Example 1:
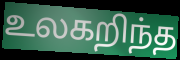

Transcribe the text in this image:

உலகறிந்த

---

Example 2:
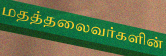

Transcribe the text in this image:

மதத்தலைவர்களின்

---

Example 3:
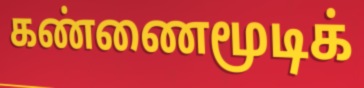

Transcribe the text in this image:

கண்ணைமூடிக்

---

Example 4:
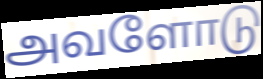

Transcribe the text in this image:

அவளோடு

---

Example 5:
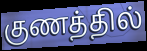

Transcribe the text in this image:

குணத்தில்